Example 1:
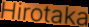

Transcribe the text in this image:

Hirotaka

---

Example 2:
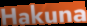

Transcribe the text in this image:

Hakuna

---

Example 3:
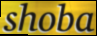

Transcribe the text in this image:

shoba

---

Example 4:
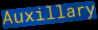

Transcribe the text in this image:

Auxillary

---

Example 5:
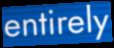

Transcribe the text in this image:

entirely